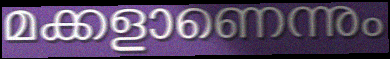
മക്കളാണെന്നും